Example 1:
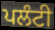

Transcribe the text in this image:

ਪਲੰਟੀ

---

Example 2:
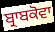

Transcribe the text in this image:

ਬ੍ਰਾਬਕੋਵਾ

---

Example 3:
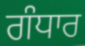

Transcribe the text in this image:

ਗੰਧਾਰ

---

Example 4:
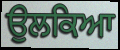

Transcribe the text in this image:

ਉਲਕਿਆ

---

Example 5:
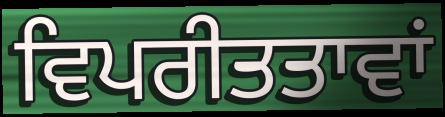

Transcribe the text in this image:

ਵਿਪਰੀਤਤਾਵਾਂ